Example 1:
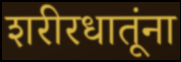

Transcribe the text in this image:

शरीरधातूंना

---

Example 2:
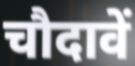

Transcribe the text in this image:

चौदावें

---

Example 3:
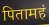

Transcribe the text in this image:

पितामहं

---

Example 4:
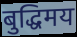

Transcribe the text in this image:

बुद्धिमय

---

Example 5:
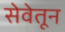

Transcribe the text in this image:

सेवेतून